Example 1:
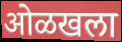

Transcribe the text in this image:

ओळखला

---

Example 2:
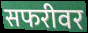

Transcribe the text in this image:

सफरीवर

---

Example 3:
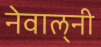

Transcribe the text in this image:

नेवाल्नी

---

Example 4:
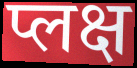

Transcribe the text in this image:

प्लक्ष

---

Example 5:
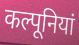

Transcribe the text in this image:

कल्पूनियां